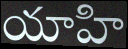
యాహి